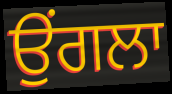
ਉਂਗਲਾ